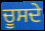
ਚੂਸਦੇ